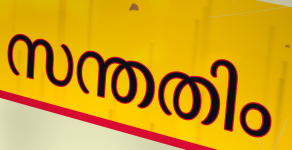
സന്തതിം